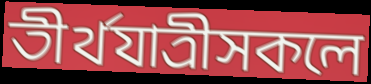
তীৰ্থযাত্ৰীসকলে